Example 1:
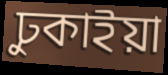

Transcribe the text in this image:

ঢুকাইয়া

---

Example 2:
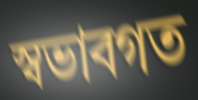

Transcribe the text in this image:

স্বভাবগত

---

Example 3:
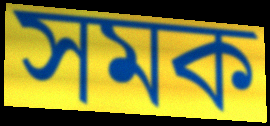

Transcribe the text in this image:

সমক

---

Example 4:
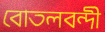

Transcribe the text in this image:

বোতলবন্দী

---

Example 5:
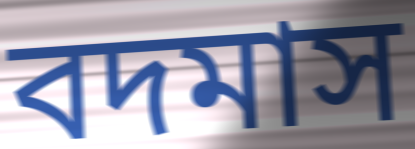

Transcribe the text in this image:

বদমাস